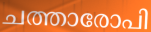
ചത്താരോപി